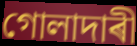
গোলাদাৰী